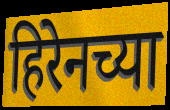
हिरेनच्या